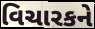
વિચારકને